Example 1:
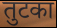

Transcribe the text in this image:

तुटका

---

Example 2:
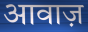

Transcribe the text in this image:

आवाज़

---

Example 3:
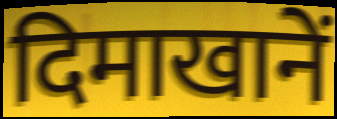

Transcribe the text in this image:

दिमाखानें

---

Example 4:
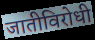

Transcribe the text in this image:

जातीविरोधी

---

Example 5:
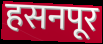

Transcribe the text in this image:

हसनपूर